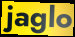
jaglo